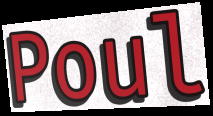
Poul